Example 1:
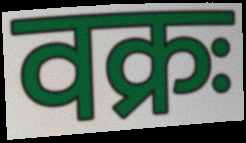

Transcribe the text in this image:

वक्रः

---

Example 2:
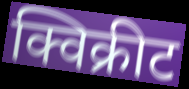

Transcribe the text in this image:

क्विक्रीट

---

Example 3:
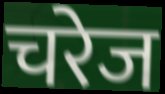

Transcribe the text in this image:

चरेज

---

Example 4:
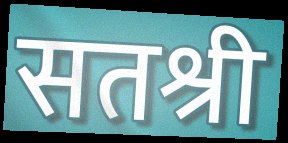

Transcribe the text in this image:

सतश्री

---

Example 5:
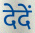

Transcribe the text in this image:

देदें